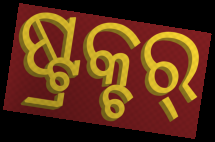
ଷ୍ଟ୍ରକ୍ଚର୍